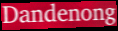
Dandenong